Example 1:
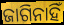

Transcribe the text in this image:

ଜାଗିନାହିଁ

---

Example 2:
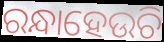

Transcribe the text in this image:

ରନ୍ଧାହେଉଚି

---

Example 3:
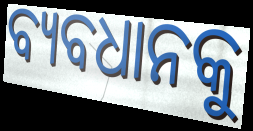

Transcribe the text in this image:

ବ୍ୟବଧାନକୁ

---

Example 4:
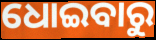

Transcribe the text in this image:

ଧୋଇବାରୁ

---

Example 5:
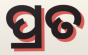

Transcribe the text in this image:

ପ୍ରତ